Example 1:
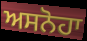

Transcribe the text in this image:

ਅਸਨੋਹਾ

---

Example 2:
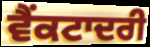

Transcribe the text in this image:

ਵੈਂਕਟਾਦਰੀ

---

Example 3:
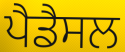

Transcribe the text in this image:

ਪੈਡੈਸਲ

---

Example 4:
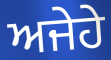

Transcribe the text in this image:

ਅਜੇਹੇ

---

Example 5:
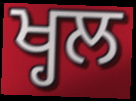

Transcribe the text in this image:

ਖ੍ਹਲ